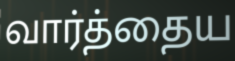
வார்த்தைய